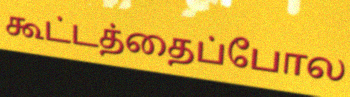
கூட்டத்தைப்போல